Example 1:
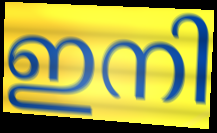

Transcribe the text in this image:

ഇനി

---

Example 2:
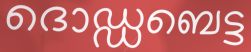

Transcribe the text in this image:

ദൊഡ്ഡബെട്ട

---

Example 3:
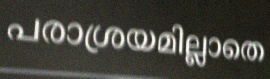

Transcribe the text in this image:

പരാശ്രയമില്ലാതെ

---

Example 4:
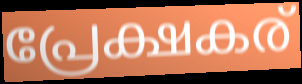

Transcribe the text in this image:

പ്രേക്ഷകര്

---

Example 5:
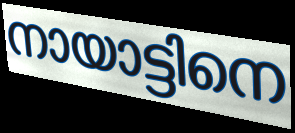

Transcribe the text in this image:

നായാട്ടിനെ